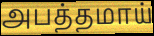
அபத்தமாய்